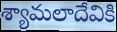
శ్యామలాదేవికి